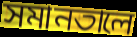
সমানতালে